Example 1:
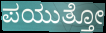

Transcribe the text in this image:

ಪಯುತ್ತೋ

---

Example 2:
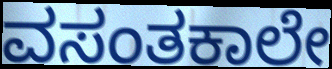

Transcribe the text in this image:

ವಸಂತಕಾಲೇ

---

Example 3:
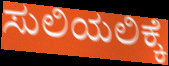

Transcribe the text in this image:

ಸುಲಿಯಲಿಕ್ಕೆ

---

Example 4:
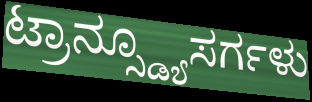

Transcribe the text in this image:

ಟ್ರಾನ್ಸ್ಡ್ಯೂಸರ್ಗಳು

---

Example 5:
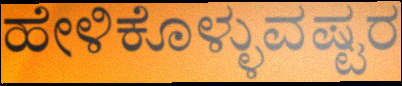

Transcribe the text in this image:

ಹೇಳಿಕೊಳ್ಳುವಷ್ಟರ